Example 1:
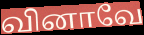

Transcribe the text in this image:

வினாவே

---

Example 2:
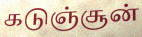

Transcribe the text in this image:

கடுஞ்சூன்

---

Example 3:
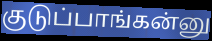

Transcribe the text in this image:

குடுப்பாங்கன்னு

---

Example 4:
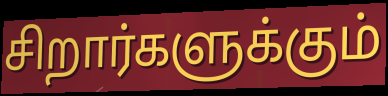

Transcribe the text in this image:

சிறார்களுக்கும்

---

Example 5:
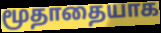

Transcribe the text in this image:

மூதாதையாக